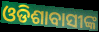
ଓଡିଶାବାସୀଙ୍କ